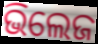
ଭିଲେଜ